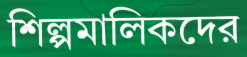
শিল্পমালিকদের